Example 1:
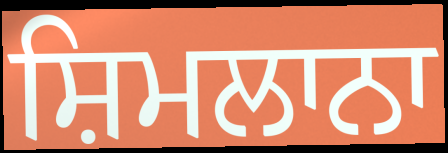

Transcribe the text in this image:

ਸ਼ਿਮਲਾਨਾ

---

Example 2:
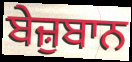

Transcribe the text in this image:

ਬੇਜ਼ੁਬਾਨ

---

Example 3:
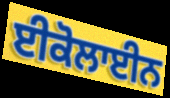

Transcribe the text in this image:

ਈਕੋਲਾਈਨ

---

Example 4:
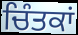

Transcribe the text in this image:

ਚਿੰਤਕਾਂ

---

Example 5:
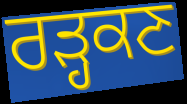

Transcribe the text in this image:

ਰੜ੍ਹਕਣ